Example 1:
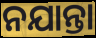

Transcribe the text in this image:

ନଯାନ୍ତା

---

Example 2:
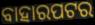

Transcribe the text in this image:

ବାହାରପଟର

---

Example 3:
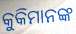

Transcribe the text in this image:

କୁକିମାନଙ୍କ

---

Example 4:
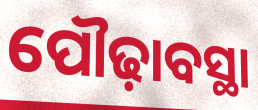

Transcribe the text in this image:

ପୌଢ଼ାବସ୍ଥା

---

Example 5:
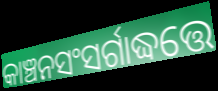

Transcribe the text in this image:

କାଞ୍ଚନସଂସର୍ଗାଦ୍ଧତ୍ତେ